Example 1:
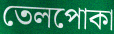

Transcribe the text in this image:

তেলপোকা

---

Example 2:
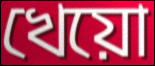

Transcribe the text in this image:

খেয়ো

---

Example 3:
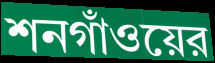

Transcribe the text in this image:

শনগাঁওয়ের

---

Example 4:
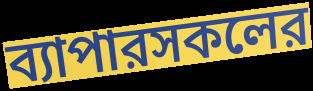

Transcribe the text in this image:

ব্যাপারসকলের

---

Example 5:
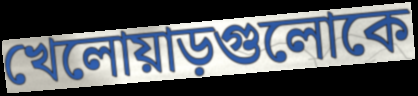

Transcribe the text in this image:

খেলোয়াড়গুলোকে